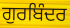
ਗੁਰਬਿੰਦਰ